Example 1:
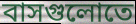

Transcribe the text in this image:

বাসগুলোতে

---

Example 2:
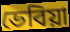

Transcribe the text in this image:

ভেবিয়া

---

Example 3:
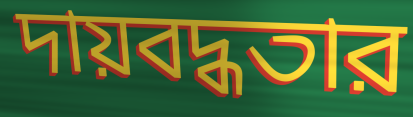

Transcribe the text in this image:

দায়বদ্ধতার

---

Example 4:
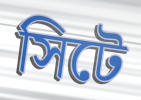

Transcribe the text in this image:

সিটে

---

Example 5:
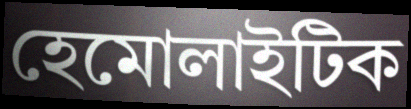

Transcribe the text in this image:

হেমোলাইটিক